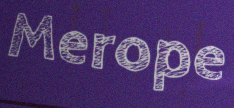
Merope